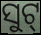
ସୁଟ୍